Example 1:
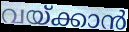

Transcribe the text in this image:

വയ്ക്കാൻ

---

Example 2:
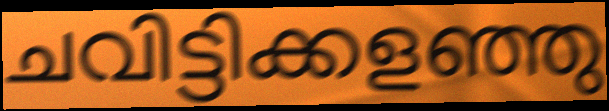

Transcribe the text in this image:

ചവിട്ടിക്കളഞ്ഞു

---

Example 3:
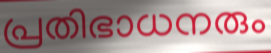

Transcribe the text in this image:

പ്രതിഭാധനരും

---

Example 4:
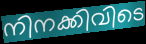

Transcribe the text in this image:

നിനക്കിവിടെ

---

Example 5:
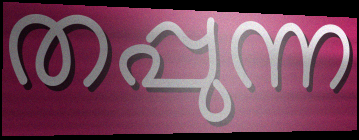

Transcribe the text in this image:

തപ്പുന്ന